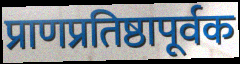
प्राणप्रतिष्ठापूर्वक